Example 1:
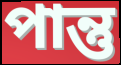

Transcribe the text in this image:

পান্তু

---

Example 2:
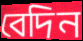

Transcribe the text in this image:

বেদিন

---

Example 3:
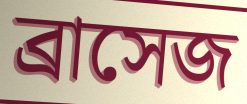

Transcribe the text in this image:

ব্রাসেজ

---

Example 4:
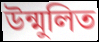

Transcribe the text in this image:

উন্মুলিত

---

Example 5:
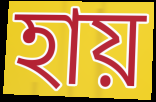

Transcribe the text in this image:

হায়